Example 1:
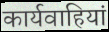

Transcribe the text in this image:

कार्यवाहियां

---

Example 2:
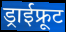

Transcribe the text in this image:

ड्राईफ्रूट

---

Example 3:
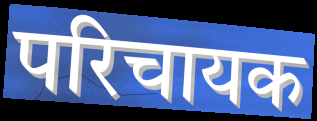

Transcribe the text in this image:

परिचायक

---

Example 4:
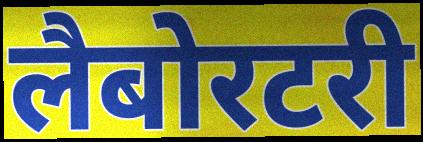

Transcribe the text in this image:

लैबोरटरी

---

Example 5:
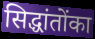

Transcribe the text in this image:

सिद्धांतोंका